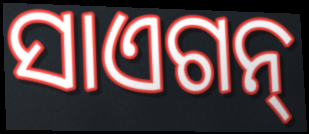
ସାଏଗନ୍